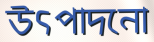
উৎপাদনো